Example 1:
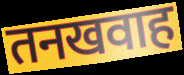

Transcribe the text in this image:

तनखवाह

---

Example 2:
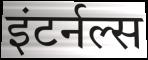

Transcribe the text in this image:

इंटर्नल्स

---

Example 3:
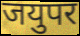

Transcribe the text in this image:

जयुपर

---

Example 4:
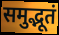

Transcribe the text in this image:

समुद्भूतं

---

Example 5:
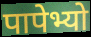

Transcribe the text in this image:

पापेभ्यो